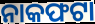
ନାକଫଟା